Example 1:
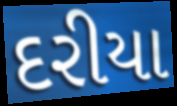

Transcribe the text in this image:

દરીયા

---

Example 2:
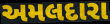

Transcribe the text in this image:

અમલદારા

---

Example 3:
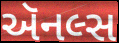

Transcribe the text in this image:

ઍનલ્સ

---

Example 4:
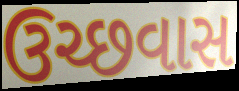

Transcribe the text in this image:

ઉચ્છવાસ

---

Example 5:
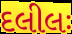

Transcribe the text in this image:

દલીલઃ